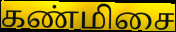
கண்மிசை